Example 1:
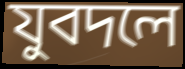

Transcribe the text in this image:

যুবদলে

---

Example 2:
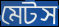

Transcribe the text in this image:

মেটস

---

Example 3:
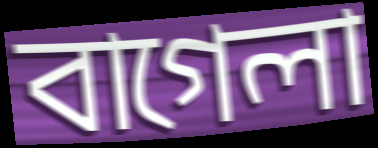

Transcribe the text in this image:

বাগেলা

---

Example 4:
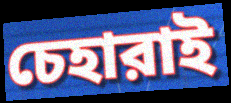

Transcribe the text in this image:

চেহারাই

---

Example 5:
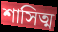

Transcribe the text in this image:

শাসিত্ম